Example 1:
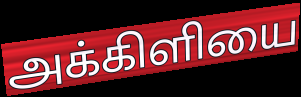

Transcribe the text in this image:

அக்கிளியை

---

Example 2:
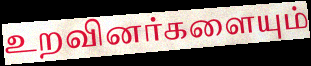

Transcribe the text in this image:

உறவினர்களையும்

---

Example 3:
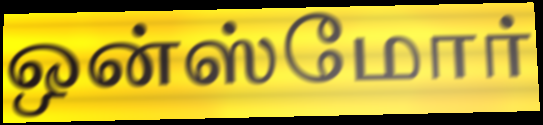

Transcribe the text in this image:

ஒன்ஸ்மோர்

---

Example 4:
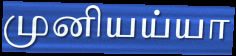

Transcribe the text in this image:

முனியய்யா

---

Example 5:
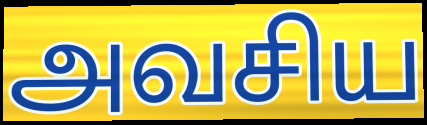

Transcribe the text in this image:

அவசிய